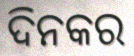
ଦିନକର